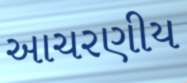
આચરણીય